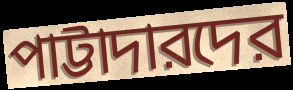
পাট্টাদারদের